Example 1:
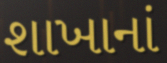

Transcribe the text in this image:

શાખાનાં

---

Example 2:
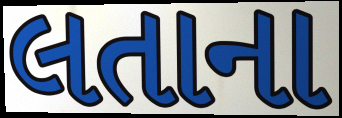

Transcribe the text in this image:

લતાના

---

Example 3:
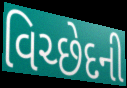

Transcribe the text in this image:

વિચ્છેદની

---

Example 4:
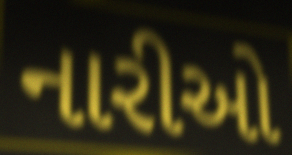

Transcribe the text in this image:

નારીઓ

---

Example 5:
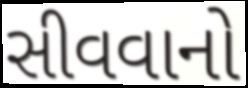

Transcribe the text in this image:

સીવવાનો